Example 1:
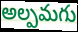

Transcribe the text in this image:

అల్పమగు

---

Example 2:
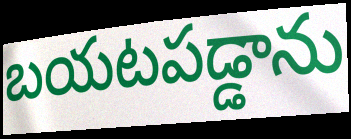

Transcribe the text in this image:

బయటపడ్డాను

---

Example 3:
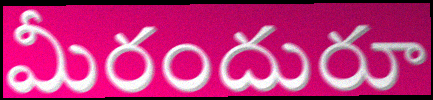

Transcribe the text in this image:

మీరందురూ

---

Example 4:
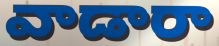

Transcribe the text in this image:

వాడారా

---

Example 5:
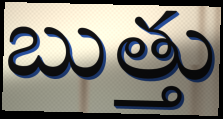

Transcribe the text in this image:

బుత్తు